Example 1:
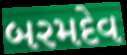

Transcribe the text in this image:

બરમદેવ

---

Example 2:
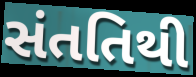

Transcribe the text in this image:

સંતતિથી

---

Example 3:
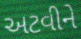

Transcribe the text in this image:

અટવીને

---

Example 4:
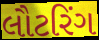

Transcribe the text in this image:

લૌટરિંગ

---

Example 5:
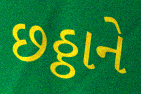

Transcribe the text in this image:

છઠ્ઠાને